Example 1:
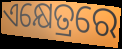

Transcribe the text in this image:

ଏକ୍ଷେତ୍ରରେ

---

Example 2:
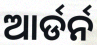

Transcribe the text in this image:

ଆର୍ଡର୍ନ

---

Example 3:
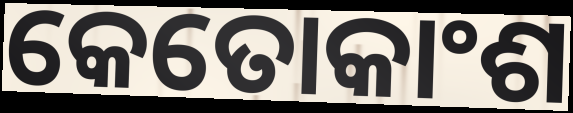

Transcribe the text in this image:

କେତୋକାଂଶ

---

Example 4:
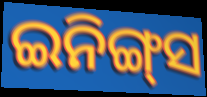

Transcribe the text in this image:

ଇନିଙ୍ଗ୍‌ସ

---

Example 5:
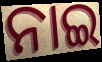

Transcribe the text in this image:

ନାଇ